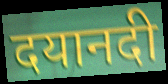
दयानदी